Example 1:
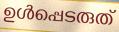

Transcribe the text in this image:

ഉൾപ്പെടരുത്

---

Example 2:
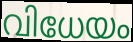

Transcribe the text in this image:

വിധേയം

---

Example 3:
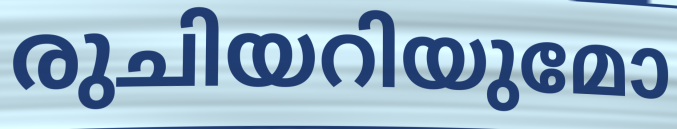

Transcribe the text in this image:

രുചിയറിയുമോ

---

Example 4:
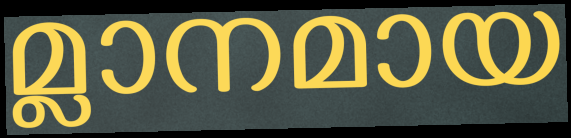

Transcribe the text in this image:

മ്ലാനമായ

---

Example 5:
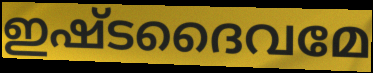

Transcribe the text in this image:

ഇഷ്ടദൈവമേ